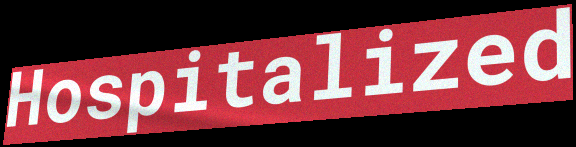
Hospitalized